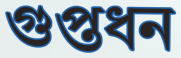
গুপ্তধন